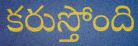
కరుస్తోంది